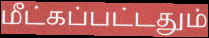
மீட்கப்பட்டதும்